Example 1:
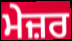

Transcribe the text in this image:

ਮੇਜ਼ਰ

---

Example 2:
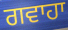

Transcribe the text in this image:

ਗਵਾਹਾ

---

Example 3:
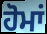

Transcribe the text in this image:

ਹੋਮਾਂ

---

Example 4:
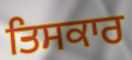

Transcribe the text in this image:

ਤਿਸਕਾਰ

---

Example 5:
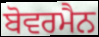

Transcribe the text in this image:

ਬੋਵਰਮੈਨ